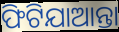
ଫିଟିଯାଆନ୍ତା